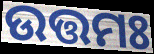
ଉତ୍ତମଃ